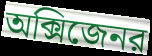
অক্সিজেনর